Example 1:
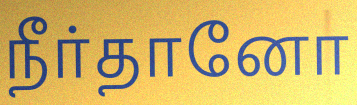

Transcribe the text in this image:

நீர்தானோ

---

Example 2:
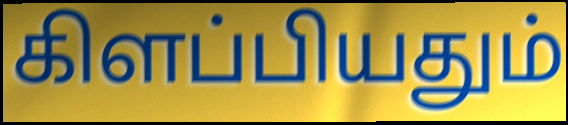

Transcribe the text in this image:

கிளப்பியதும்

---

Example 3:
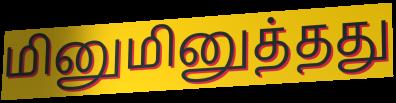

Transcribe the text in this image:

மினுமினுத்தது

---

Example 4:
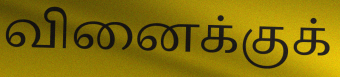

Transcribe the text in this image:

வினைக்குக்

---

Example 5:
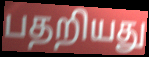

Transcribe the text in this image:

பதறியது